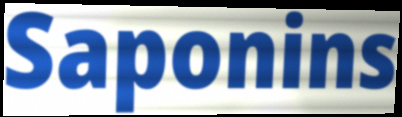
Saponins